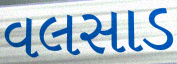
વલસાડ